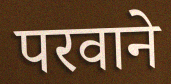
परवाने